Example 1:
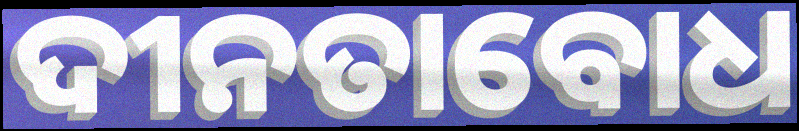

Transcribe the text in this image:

ଦୀନତାବୋଧ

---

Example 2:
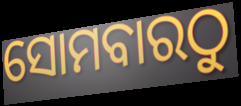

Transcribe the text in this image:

ସୋମବାରଠୁ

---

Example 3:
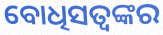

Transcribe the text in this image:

ବୋଧିସତ୍ୱଙ୍କର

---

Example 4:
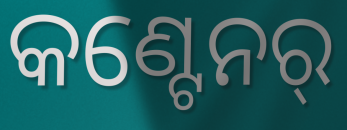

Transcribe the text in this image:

କଣ୍ଟେନର୍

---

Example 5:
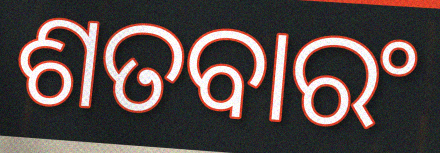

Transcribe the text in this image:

ଶତବାରଂ